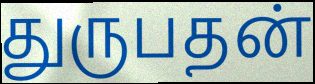
துருபதன்